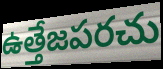
ఉత్తేజపరచు